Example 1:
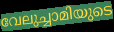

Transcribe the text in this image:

വേലുച്ചാമിയുടെ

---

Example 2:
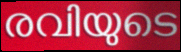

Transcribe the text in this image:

രവിയുടെ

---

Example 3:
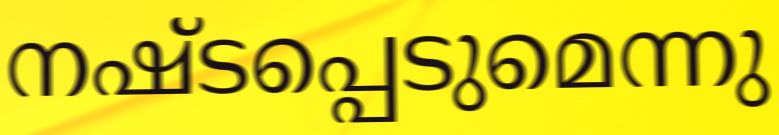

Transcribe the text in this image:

നഷ്ടപ്പെടുമെന്നു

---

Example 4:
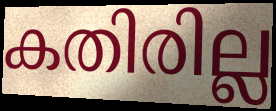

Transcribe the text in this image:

കതിരില്ല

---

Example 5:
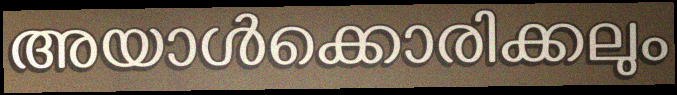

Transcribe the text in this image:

അയാൾക്കൊരിക്കലും